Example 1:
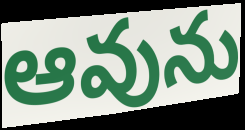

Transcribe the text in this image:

ఆవును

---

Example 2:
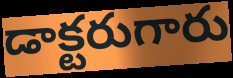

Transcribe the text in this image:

డాక్టరుగారు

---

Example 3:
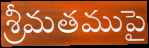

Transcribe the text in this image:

శ్రీమతముపై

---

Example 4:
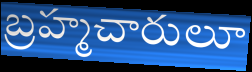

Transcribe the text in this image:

బ్రహ్మచారులూ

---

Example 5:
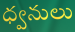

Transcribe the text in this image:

ధ్వనులు